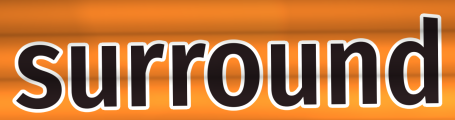
surround